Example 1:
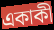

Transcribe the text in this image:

একাকী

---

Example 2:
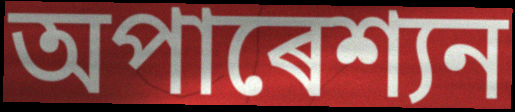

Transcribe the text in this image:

অপাৰেশ্যন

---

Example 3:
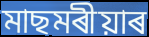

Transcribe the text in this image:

মাছমৰীয়াৰ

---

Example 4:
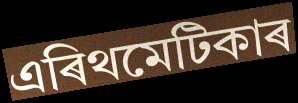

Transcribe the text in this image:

এৰিথমেটিকাৰ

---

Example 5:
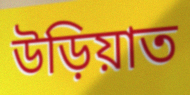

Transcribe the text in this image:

উড়িয়াত